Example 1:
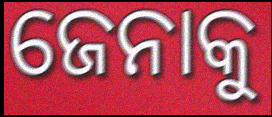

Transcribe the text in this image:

ଜେନାକୁ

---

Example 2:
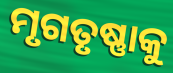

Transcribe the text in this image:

ମୃଗତୃଷ୍ଣାକୁ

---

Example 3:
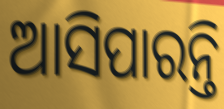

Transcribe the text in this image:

ଆସିପାରନ୍ତି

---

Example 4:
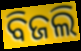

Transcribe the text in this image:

ବିଜଲି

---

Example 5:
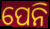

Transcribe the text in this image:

ପେନି